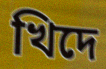
খিদে